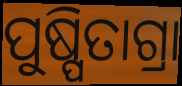
ପୁଷ୍ପିତାଗ୍ରା